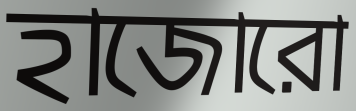
হাজোরো